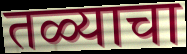
तळ्याचा